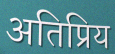
अतिप्रिय